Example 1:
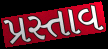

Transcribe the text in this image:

પ્રસ્તાવ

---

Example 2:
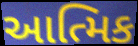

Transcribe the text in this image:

આત્મિક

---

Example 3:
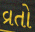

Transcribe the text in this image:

વ્રતો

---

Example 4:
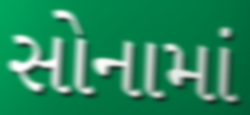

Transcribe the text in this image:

સોનામાં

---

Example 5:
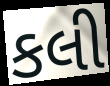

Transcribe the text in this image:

કલી